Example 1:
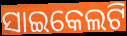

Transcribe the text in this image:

ସାଇକେଲଟି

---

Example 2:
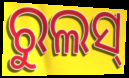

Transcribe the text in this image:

ରୁଲସ୍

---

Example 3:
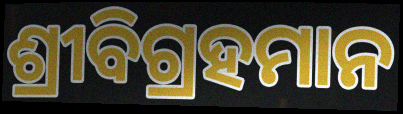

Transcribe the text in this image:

ଶ୍ରୀବିଗ୍ରହମାନ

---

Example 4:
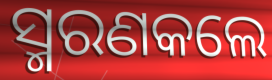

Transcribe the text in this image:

ସ୍ମରଣକଲେ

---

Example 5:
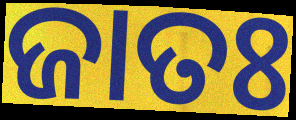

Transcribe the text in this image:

ଜାତଃ